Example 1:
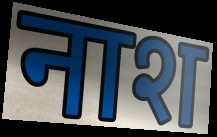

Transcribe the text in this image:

नाश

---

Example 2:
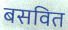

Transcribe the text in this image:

बसवित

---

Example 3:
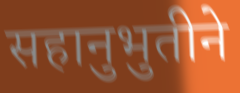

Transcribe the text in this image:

सहानुभुतीने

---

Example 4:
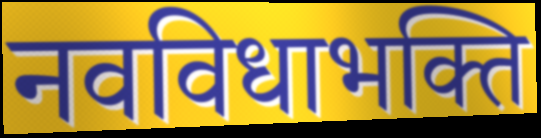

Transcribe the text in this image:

नवविधाभक्ति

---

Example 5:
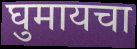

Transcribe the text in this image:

घुमायचा